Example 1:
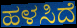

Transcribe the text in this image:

ಹಳಸಿದೆ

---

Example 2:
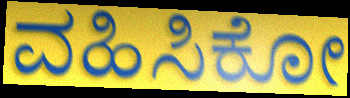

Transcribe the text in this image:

ವಹಿಸಿಕೋ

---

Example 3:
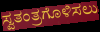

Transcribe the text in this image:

ಸ್ವತಂತ್ರಗೊಳಿಸಲು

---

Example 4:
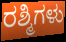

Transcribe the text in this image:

ರಶ್ಮಿಗಳು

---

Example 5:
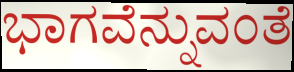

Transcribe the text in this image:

ಭಾಗವೆನ್ನುವಂತೆ